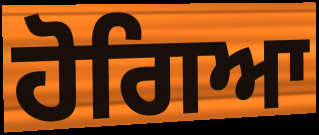
ਹੋਗਿਆ